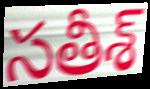
సతీశ్